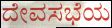
ದೇವಸಭೆಯ